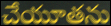
చేయూతను